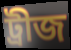
ট্রীজ